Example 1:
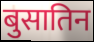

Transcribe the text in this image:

बुसातिन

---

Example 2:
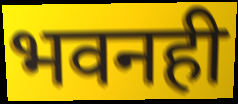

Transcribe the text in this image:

भवनही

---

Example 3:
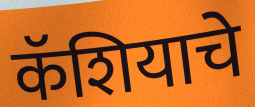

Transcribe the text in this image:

कॅशियाचे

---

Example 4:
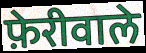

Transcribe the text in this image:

फ़ेरीवाले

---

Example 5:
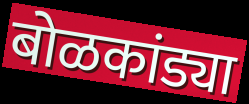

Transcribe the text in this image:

बोळकांड्या